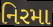
નિરમા